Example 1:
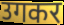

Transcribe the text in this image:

उगकर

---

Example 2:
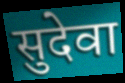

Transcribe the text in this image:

सुदेवा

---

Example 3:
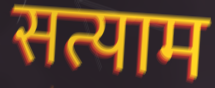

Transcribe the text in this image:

सत्याम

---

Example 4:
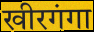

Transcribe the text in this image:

खीरगंगा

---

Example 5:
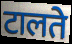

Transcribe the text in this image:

टालते